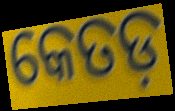
କେତଡ଼